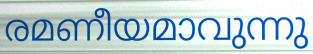
രമണീയമാവുന്നു